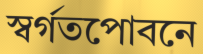
স্বর্গতপোবনে